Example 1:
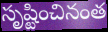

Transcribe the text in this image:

సృష్టించినంత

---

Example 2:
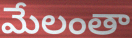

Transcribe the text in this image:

మేలంతా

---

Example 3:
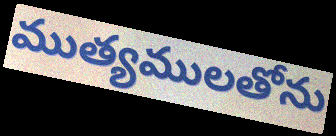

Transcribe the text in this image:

ముత్యములతోను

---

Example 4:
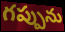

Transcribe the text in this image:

గప్పును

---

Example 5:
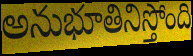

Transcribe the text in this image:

అనుభూతినిస్తోంది